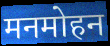
मनमोहन